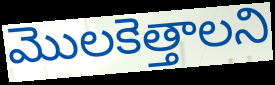
మొలకెత్తాలని